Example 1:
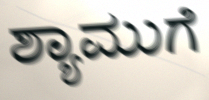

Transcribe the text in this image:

ಶ್ಯಾಮುಗೆ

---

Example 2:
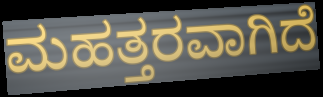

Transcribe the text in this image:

ಮಹತ್ತರವಾಗಿದೆ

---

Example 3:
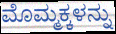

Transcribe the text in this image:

ಮೊಮ್ಮಕ್ಕಳನ್ನು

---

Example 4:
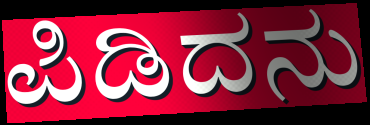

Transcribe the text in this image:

ಪಿಡಿದನು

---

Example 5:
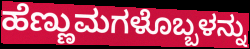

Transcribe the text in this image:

ಹೆಣ್ಣುಮಗಳೊಬ್ಬಳನ್ನು